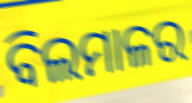
ବିଲମାଳର